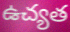
ఉచ్యత